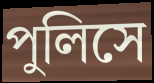
পুলিসে